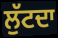
ਲੁੱਟਦਾ